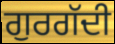
ਗੁਰਗੱਦੀ